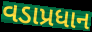
વડાપ્રધાન